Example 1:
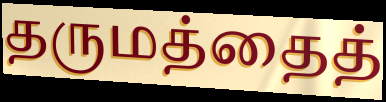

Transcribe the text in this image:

தருமத்தைத்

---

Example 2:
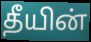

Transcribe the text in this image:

தீயின்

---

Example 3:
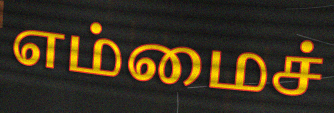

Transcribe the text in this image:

எம்மைச்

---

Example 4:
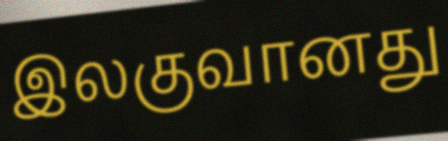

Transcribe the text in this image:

இலகுவானது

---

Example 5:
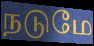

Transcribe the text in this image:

நடுமே